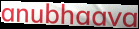
anubhaava